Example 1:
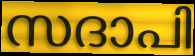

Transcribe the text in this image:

സദാപി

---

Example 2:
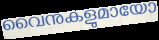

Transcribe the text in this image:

വൈനുകളുമായോ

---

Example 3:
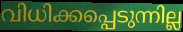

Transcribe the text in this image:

വിധിക്കപ്പെടുന്നില്ല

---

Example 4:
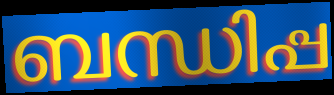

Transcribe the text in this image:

ബന്ധിപ്പ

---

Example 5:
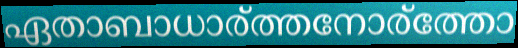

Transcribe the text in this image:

ഏതാബാധാര്ത്തനോര്ത്തോ